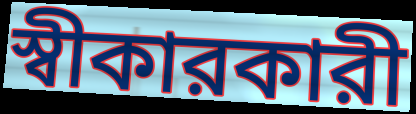
স্বীকারকারী